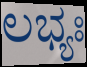
ಲಭ್ಯಃ